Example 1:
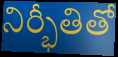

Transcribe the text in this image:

నిర్భీతితో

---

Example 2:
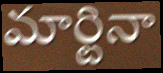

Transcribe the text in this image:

మార్టినా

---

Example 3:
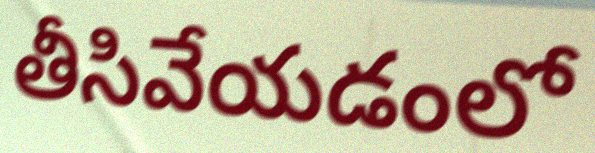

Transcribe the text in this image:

తీసివేయడంలో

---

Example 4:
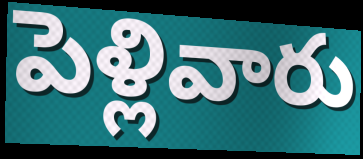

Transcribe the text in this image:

పెళ్లివారు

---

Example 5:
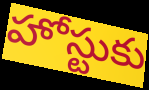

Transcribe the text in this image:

హోస్టుకు